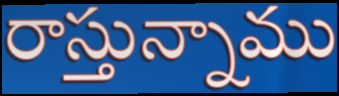
రాస్తున్నాము